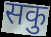
सकु